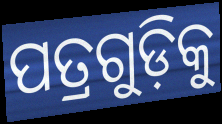
ପତ୍ରଗୁଡ଼ିକୁ